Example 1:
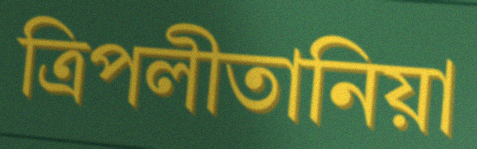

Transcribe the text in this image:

ত্রিপলীতানিয়া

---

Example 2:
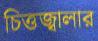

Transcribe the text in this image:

চিত্তজ্বালার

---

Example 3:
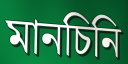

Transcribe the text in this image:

মানচিনি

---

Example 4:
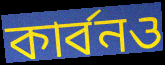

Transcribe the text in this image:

কার্বনও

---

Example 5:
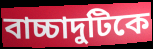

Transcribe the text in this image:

বাচ্চাদুটিকে